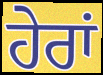
ਹੇਰਾਂ